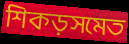
শিকড়সমেত